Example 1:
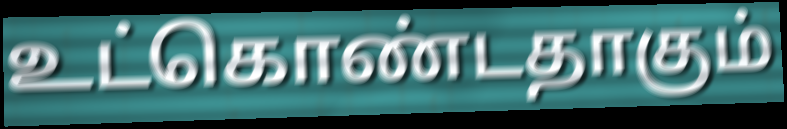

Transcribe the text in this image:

உட்கொண்டதாகும்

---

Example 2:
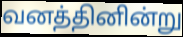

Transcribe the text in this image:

வனத்தினின்று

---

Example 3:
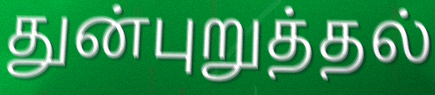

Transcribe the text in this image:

துன்புறுத்தல்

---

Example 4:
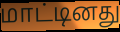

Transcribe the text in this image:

மாட்டினது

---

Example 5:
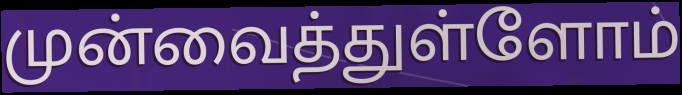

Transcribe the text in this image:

முன்வைத்துள்ளோம்